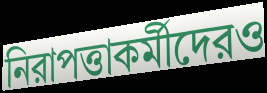
নিরাপত্তাকর্মীদেরও